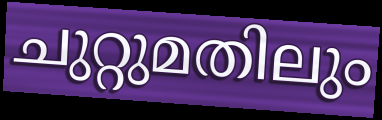
ചുറ്റുമതിലും